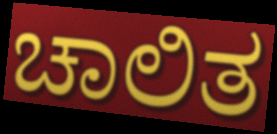
ಚಾಲಿತ